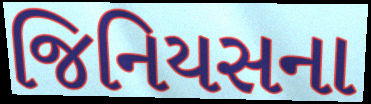
જિનિયસના